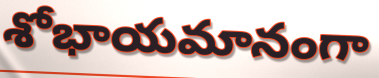
శోభాయమానంగా